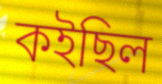
কইছিল